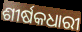
ଶୀର୍ଷକଧାରୀ